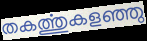
തകൎത്തുകളഞ്ഞു